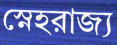
স্নেহরাজ্য